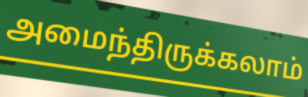
அமைந்திருக்கலாம்